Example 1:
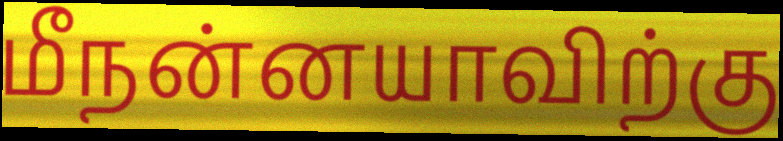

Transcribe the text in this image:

மீநன்னயாவிற்கு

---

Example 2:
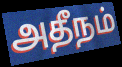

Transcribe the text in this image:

அதீநம்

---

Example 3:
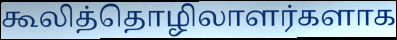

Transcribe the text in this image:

கூலித்தொழிலாளர்களாக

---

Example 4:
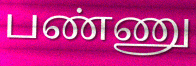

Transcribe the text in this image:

பண்ணு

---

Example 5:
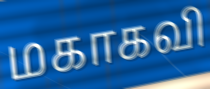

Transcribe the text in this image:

மகாகவி